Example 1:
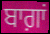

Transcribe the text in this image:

ਬਾਗ਼ਾਂ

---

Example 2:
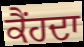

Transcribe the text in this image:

ਕੈਂਹਦਾ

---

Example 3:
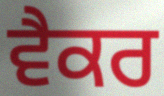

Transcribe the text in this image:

ਵੈਕਰ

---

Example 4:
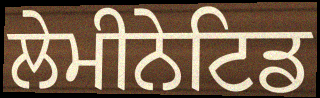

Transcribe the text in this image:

ਲੇਮੀਨੇਟਿਡ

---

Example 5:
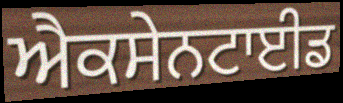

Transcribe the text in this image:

ਐਕਸੇਨਟਾਈਡ